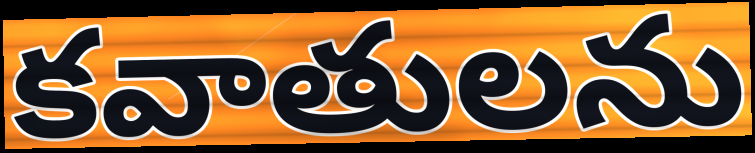
కవాతులను